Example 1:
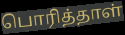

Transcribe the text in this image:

பொரித்தாள்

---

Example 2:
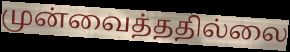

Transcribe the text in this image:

முன்வைத்ததில்லை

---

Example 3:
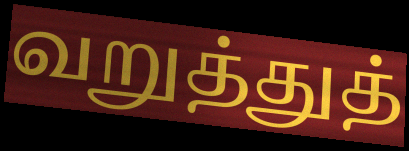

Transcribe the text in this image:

வறுத்துத்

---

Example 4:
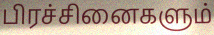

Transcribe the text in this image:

பிரச்சினைகளும்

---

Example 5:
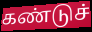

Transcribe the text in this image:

கண்டுச்